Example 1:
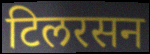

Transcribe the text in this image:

टिलरसन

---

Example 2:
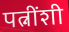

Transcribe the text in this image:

पत्नींशी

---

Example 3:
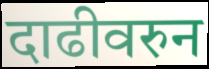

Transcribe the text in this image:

दाढीवरुन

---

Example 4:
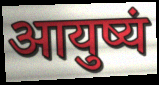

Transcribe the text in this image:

आयुष्यं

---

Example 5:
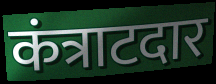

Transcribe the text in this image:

कंत्राटदार